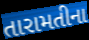
તારામતીના